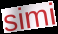
simi